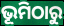
ଭୂମିଠାରୁ